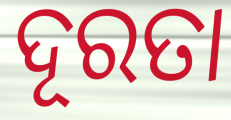
ଦୂରତା